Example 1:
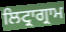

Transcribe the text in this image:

ਲਿਟ੍ਰਾਗ੍ਰਾਮ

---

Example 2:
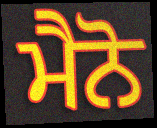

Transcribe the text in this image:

ਮੈਨੋ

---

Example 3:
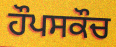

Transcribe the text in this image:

ਹੌਪਸਕੌਚ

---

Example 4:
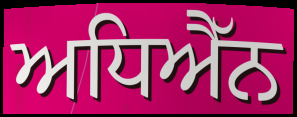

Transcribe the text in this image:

ਅਧਿਐੱਨ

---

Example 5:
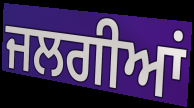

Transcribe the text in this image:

ਜਲਗੀਆਂ